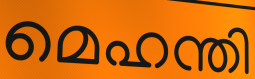
മെഹന്തി